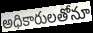
అధికారులతోనూ